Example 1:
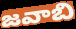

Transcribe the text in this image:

జవాబి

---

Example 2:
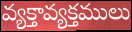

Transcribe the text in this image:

వ్యక్తావ్యక్తములు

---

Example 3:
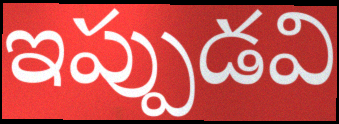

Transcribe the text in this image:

ఇప్పుడవి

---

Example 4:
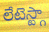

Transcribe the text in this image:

లేటెస్ట్గా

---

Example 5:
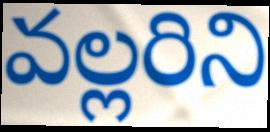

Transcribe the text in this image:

వల్లరిని